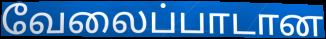
வேலைப்பாடான